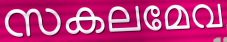
സകലമേവ